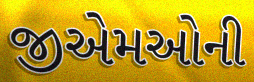
જીએમઓની